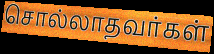
சொல்லாதவர்கள்